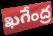
ఖగేంద్ర